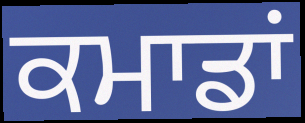
ਕਮਾਡਾਂ